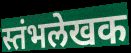
स्तंभलेखक